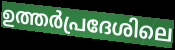
ഉത്തർപ്രദേശിലെ